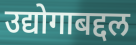
उद्योगाबद्दल